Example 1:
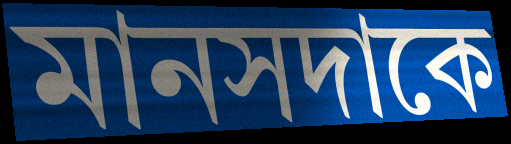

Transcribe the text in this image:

মানসদাকে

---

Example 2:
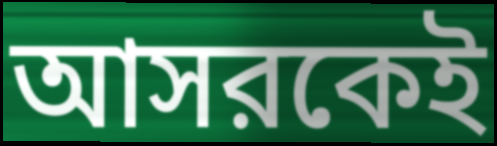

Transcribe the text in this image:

আসরকেই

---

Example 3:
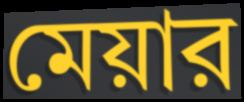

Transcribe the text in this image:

মেয়ার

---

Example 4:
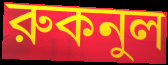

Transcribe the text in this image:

রুকনুল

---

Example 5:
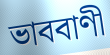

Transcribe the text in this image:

ভাববাণী